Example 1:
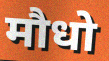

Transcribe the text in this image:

मौधो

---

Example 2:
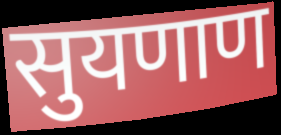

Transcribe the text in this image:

सुयणाण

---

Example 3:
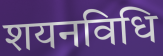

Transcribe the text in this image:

शयनविधि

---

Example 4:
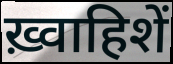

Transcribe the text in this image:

ख़्वाहिशें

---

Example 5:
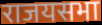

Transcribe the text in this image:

राजयसभा